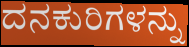
ದನಕುರಿಗಳನ್ನು